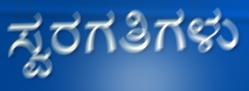
ಸ್ವರಗತಿಗಳು